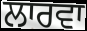
ਲਾਰਵਾ